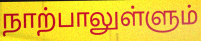
நாற்பாலுள்ளும்